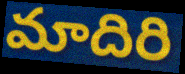
మాదిరి